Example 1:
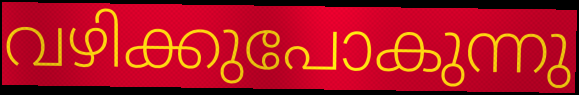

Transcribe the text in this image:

വഴിക്കുപോകുന്നു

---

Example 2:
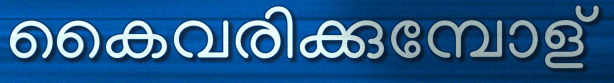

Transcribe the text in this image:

കൈവരിക്കുമ്പോള്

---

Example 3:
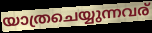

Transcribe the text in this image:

യാത്രചെയ്യുന്നവര്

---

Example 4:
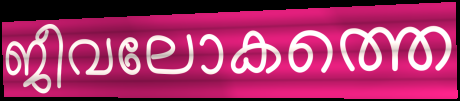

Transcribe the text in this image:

ജീവലോകത്തെ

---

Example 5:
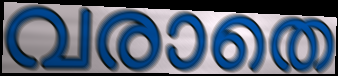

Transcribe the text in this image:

വരാതെ